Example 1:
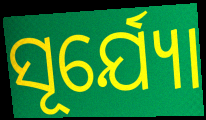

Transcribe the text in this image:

ସୂର୍ଯ୍ୟୋ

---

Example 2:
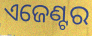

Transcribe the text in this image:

ଏଜେଣ୍ଟର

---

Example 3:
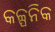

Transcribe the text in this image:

କଳ୍ପନିକ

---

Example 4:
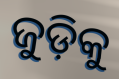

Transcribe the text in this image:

ଜୁଡ଼ିକୁ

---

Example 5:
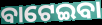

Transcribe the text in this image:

ବାଟେଇବା